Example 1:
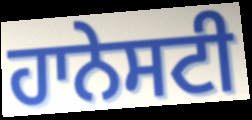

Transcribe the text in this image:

ਹਾਨੇਸਟੀ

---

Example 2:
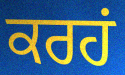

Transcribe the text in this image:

ਕਰਹਂ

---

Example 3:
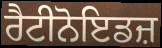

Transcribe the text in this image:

ਰੈਟੀਨੋਇਡਜ਼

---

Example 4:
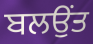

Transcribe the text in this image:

ਬਲਉਂਤ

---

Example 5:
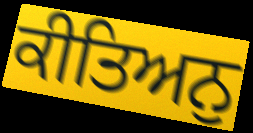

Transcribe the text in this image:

ਕੀਤਿਅਨੁ